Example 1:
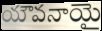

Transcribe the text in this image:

యౌవనాయై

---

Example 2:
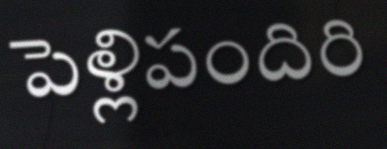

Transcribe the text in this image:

పెళ్లిపందిరి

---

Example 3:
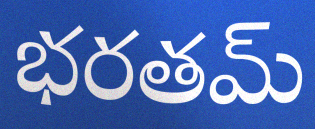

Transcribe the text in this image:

భరతమ్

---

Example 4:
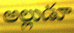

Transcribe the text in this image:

అల్లుడూ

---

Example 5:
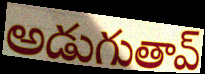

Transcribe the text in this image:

అడుగుతావ్